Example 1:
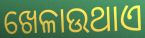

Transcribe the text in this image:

ଖେଳାଉଥାଏ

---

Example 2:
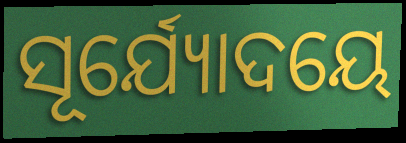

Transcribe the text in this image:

ସୂର୍ଯ୍ୟୋଦୟେ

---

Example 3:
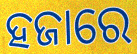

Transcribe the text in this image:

ହଜାରେ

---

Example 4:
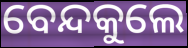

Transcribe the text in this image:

ବେନ୍ଦକୁଲେ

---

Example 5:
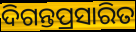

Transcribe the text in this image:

ଦିଗନ୍ତପ୍ରସାରିତ